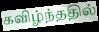
கவிழ்ந்ததில்